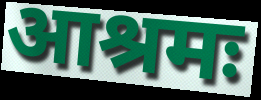
आश्रमः